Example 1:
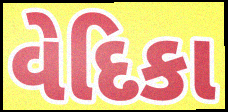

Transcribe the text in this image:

વેદિકા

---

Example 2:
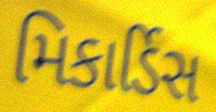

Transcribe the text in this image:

મિકાર્ડિસ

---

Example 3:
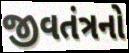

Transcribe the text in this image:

જીવતંત્રનો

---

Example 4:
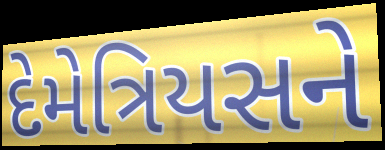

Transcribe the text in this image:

દેમેત્રિયસને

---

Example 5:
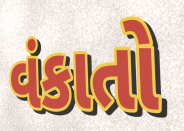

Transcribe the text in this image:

વંકાતો